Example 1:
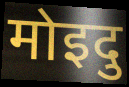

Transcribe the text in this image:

मोइदु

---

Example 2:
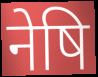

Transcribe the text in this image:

नेषि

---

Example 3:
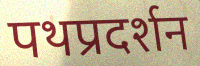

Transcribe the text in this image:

पथप्रदर्शन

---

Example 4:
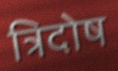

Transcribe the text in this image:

त्रिदोष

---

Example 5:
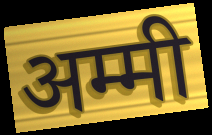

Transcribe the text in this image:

अम्मी